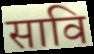
सावि